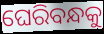
ଘେରିବନ୍ଧକୁ